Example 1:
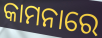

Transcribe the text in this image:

କାମନାରେ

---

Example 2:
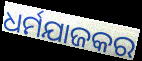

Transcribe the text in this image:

ଧର୍ମଯାଜକର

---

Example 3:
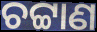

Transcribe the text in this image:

ଚଟ୍ଟାଣ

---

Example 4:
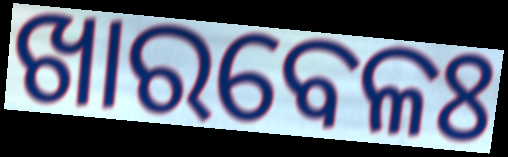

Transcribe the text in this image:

ଖାରବେଳଃ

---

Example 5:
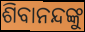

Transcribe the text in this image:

ଶିବାନନ୍ଦଙ୍କୁ